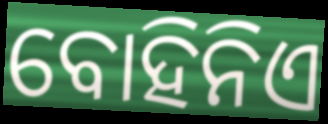
ବୋହିନିଏ